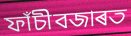
ফাঁচীবজাৰত